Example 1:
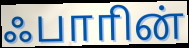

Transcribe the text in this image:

ஃபாரின்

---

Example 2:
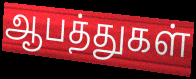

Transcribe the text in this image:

ஆபத்துகள்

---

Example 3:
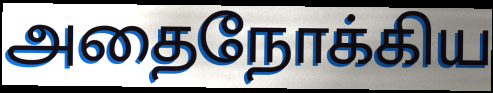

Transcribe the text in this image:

அதைநோக்கிய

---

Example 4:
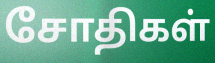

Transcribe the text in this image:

சோதிகள்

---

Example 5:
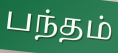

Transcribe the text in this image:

பந்தம்